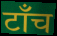
टाँच